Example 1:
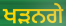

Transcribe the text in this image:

ਖੜਨਗੇ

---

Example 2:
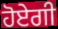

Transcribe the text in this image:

ਹੋਏਗੀ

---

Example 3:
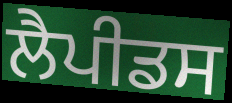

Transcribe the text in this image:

ਲੈਪੀਡਸ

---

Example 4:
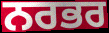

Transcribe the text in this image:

ਨਰਭਰ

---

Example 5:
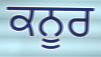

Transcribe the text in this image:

ਕਨੂਰ